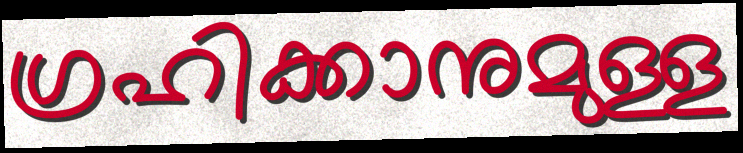
ഗ്രഹിക്കാനുമുള്ള